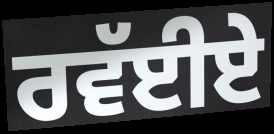
ਰਵੱਈਏ